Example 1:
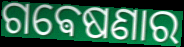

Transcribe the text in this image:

ଗଵେଷଣାର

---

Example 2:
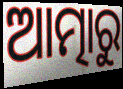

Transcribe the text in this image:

ଆତ୍ମାରୁ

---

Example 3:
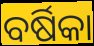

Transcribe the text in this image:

ବର୍ଷିକା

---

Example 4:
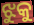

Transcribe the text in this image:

ଝୁକୁ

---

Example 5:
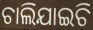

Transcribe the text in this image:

ଚାଲିଯାଇଚି